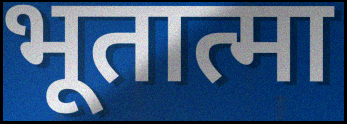
भूतात्मा